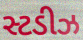
સ્ટડીઝ